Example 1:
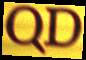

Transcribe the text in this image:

QD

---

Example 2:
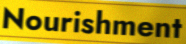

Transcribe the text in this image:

Nourishment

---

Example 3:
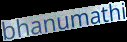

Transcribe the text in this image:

bhanumathi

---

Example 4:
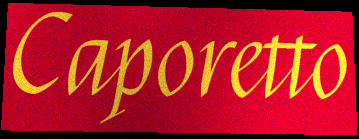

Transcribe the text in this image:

Caporetto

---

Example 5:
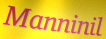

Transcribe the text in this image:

Manninil